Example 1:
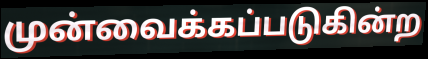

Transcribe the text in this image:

முன்வைக்கப்படுகின்ற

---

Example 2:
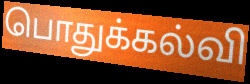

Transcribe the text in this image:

பொதுக்கல்வி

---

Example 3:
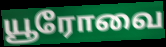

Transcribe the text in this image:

யூரோவை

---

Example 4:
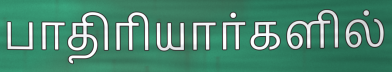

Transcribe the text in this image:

பாதிரியார்களில்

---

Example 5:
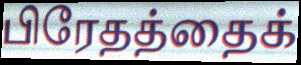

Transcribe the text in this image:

பிரேதத்தைக்